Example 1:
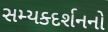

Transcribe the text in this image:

સમ્યક્દર્શનનો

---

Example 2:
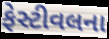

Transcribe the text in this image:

ફેસ્ટીવલના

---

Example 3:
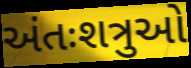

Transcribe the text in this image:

અંતઃશત્રુઓ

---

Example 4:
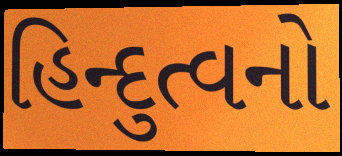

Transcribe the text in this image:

હિન્દુત્વનો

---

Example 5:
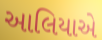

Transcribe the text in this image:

આલિયાએ